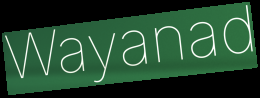
Wayanad